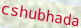
cshubhada